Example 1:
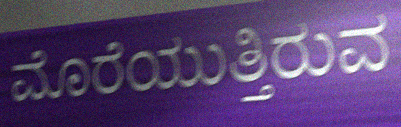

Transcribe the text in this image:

ಮೊರೆಯುತ್ತಿರುವ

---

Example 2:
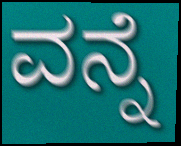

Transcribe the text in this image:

ವನ್ನೆ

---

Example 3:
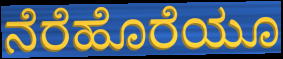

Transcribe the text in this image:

ನೆರೆಹೊರೆಯೂ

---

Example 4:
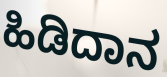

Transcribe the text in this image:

ಹಿಡಿದಾನ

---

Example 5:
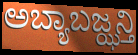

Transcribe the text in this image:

ಅಬ್ಯಾಬಜ್ಝನ್ತಿ